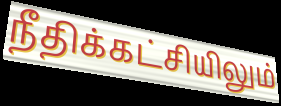
நீதிக்கட்சியிலும்